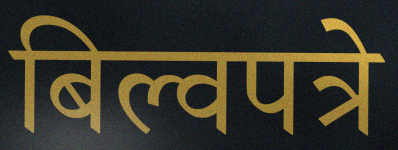
बिल्वपत्रे